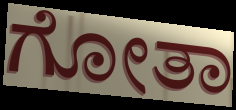
ಗೋತಾ